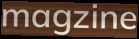
magzine